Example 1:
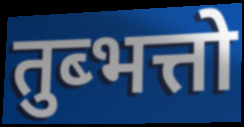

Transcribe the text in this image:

तुब्भत्तो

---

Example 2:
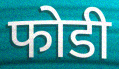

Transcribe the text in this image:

फोडी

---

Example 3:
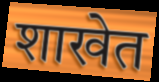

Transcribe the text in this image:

शाखेत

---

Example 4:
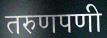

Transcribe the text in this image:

तरुणपणी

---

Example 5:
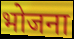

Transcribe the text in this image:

भोजना